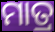
ମାତ୍ର